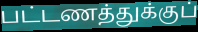
பட்டணத்துக்குப்